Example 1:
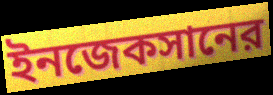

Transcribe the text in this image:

ইনজেকসানের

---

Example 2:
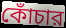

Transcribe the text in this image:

কোঁচার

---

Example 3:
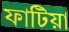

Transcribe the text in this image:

ফাটিয়া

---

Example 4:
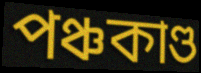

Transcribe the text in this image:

পঞ্চকাণ্ড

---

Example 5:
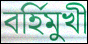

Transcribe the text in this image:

বর্হিমুখী